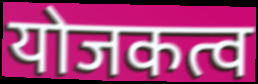
योजकत्व